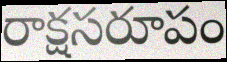
రాక్షసరూపం